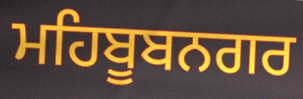
ਮਹਿਬੂਬਨਗਰ